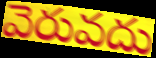
వెరువదు